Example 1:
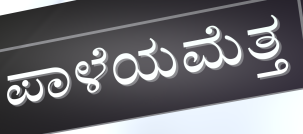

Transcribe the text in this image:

ಪಾಳೆಯಮೆತ್ತ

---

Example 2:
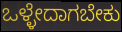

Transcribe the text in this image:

ಒಳ್ಳೇದಾಗಬೇಕು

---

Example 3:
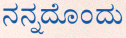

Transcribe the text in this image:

ನನ್ನದೊಂದು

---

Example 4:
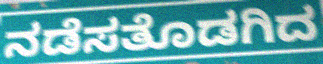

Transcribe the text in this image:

ನಡೆಸತೊಡಗಿದ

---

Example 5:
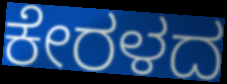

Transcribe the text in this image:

ಕೇರಳದ